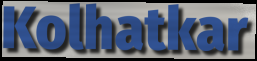
Kolhatkar